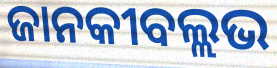
ଜାନକୀବଲ୍ଲଭ